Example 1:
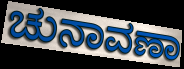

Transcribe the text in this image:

ಚುನಾವಣಾ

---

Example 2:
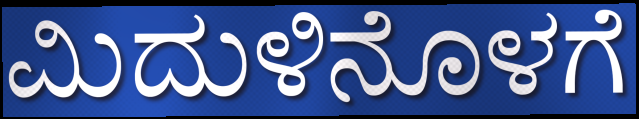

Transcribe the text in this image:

ಮಿದುಳಿನೊಳಗೆ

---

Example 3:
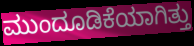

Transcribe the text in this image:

ಮುಂದೂಡಿಕೆಯಾಗಿತ್ತು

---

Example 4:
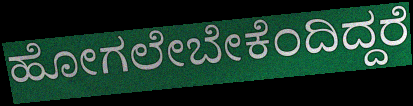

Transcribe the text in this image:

ಹೋಗಲೇಬೇಕೆಂದಿದ್ದರೆ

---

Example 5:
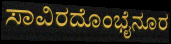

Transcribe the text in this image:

ಸಾವಿರದೊಂಭೈನೂರ